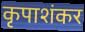
कृपाशंकर